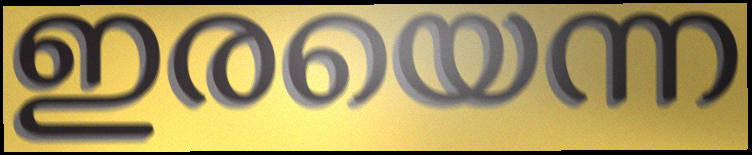
ഇരയെന്ന